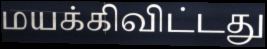
மயக்கிவிட்டது